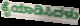
ಕೈಯಾಡಿಸಿದಳು